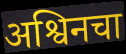
अश्विनचा